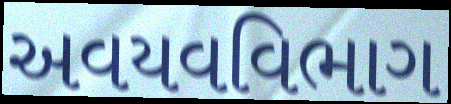
અવયવવિભાગ